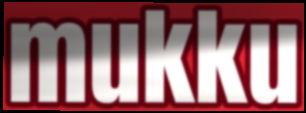
mukku